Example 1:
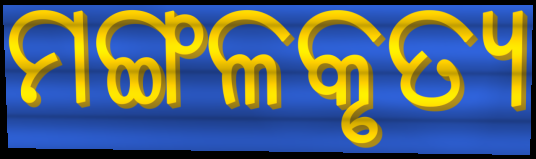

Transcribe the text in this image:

ମଙ୍ଗଳକୃତ୍ୟ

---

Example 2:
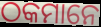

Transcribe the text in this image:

ଠକମାନେ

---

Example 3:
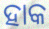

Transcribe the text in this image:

ହାକ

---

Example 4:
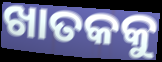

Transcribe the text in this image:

ଖାତକକୁ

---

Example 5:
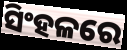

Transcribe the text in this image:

ସିଂହଳରେ